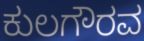
ಕುಲಗೌರವ